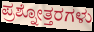
ಪ್ರಶ್ನೋತ್ತರಗಳು